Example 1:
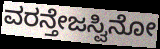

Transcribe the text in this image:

ವರನ್ತೇಜಸ್ವಿನೋ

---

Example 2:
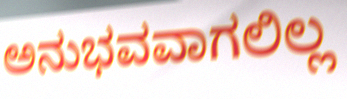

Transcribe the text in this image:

ಅನುಭವವಾಗಲಿಲ್ಲ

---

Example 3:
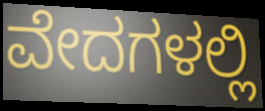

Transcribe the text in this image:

ವೇದಗಳಲ್ಲಿ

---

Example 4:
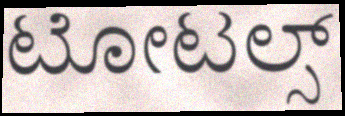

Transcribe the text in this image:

ಟೋಟಲ್ಸ್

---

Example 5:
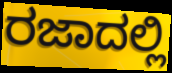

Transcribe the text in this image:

ರಜಾದಲ್ಲಿ